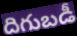
దిగుబడీ